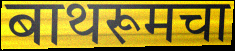
बाथरूमचा